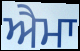
ਐਮਾ